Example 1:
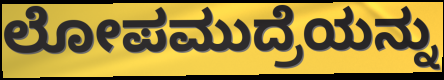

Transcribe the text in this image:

ಲೋಪಮುದ್ರೆಯನ್ನು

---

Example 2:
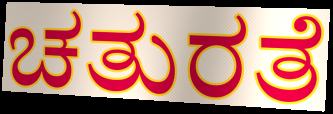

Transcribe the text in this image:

ಚತುರತೆ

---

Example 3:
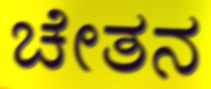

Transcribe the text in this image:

ಚೇತನ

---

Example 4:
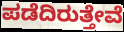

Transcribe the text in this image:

ಪಡೆದಿರುತ್ತೇವೆ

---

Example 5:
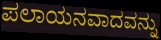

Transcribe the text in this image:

ಪಲಾಯನವಾದವನ್ನು